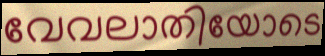
വേവലാതിയോടെ